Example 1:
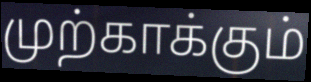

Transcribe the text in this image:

முற்காக்கும்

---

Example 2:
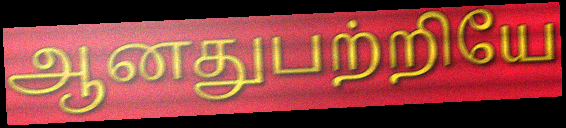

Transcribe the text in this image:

ஆனதுபற்றியே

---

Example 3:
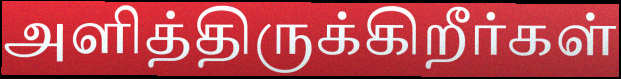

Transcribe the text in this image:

அளித்திருக்கிறீர்கள்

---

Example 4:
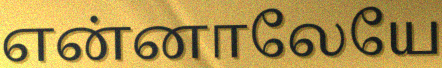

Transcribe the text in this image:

என்னாலேயே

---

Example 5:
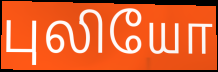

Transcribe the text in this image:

புலியோ